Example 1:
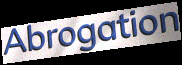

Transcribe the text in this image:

Abrogation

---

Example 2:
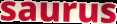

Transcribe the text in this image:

saurus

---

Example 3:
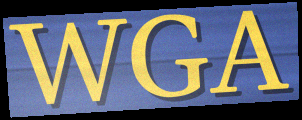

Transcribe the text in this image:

WGA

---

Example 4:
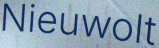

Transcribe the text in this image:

Nieuwolt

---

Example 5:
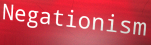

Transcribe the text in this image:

Negationism